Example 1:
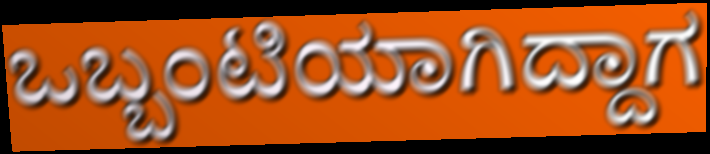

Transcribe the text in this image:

ಒಬ್ಬಂಟಿಯಾಗಿದ್ದಾಗ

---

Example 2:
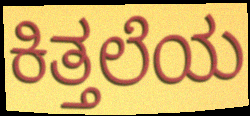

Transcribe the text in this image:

ಕಿತ್ತಲೆಯ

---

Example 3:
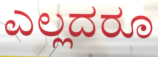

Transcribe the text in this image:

ಎಲ್ಲದರೂ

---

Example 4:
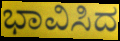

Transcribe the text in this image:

ಭಾವಿಸಿದ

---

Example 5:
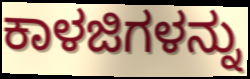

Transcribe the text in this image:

ಕಾಳಜಿಗಳನ್ನು